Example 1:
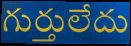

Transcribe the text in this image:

గుర్తులేదు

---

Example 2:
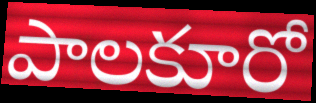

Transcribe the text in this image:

పాలకూరో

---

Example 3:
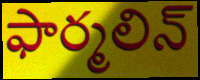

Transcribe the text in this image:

ఫార్మలిన్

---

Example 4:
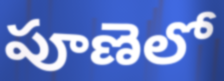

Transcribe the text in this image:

పూణెలో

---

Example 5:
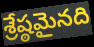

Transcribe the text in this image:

శ్రేష్ఠమైనది